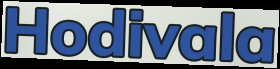
Hodivala